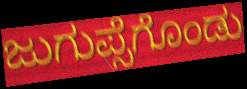
ಜುಗುಪ್ಸೆಗೊಂಡು